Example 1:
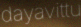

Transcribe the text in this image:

dayavittu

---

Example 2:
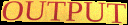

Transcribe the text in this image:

OUTPUT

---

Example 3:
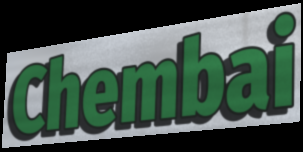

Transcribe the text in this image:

Chembai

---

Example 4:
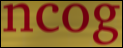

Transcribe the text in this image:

ncog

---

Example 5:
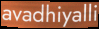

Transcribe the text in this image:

avadhiyalli